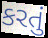
કરતું